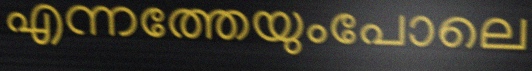
എന്നത്തേയുംപോലെ